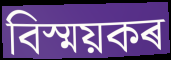
বিস্ময়কৰ